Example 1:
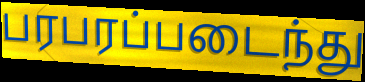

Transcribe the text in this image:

பரபரப்படைந்து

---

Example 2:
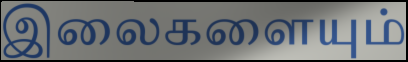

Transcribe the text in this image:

இலைகளையும்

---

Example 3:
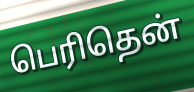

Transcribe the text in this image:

பெரிதென்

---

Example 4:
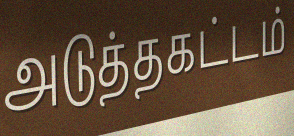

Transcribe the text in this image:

அடுத்தகட்டம்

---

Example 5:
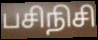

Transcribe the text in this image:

பசிநிசி